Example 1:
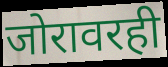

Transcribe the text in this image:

जोरावरही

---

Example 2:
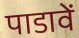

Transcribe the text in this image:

पाडावें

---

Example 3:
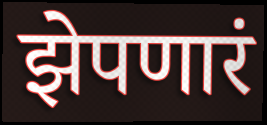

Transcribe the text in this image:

झेपणारं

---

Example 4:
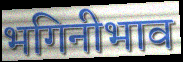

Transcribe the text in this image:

भगिनीभाव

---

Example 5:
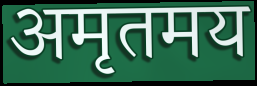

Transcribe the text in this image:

अमृतमय